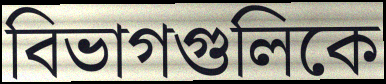
বিভাগগুলিকে